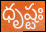
ధృష్టః